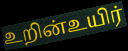
உறின்உயிர்